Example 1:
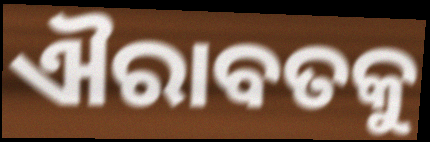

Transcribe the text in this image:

ଐରାବତକୁ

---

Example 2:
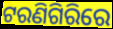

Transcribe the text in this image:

ଟରଣିଗିରିରେ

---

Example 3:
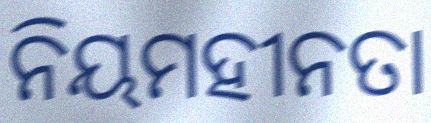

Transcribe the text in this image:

ନିୟମହୀନତା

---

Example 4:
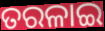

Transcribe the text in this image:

ତରଳାଇ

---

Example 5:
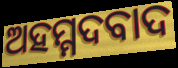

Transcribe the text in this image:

ଅହମ୍ମଦବାଦ